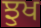
ਝੁਖ